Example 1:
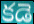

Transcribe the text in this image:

కడె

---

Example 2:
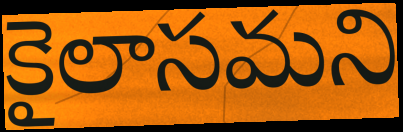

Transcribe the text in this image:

కైలాసమని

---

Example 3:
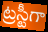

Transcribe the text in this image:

ట్రస్టీగా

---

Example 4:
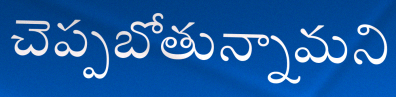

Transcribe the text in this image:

చెప్పబోతున్నామని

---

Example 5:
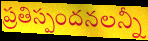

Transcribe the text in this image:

ప్రతిస్పందనలన్నీ